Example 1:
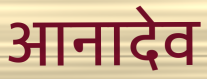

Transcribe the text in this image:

आनादेव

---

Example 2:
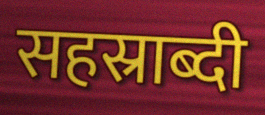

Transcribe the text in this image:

सहस्राब्दी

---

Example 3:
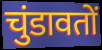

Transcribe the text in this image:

चुंडावतों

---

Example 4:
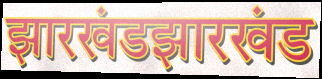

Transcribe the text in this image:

झारखंडझारखंड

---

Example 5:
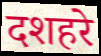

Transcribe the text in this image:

दशहरे